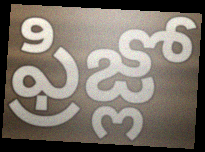
ఫ్రిజ్లో